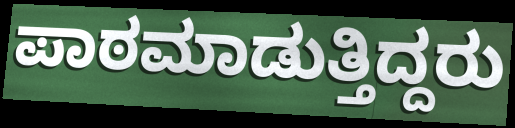
ಪಾಠಮಾಡುತ್ತಿದ್ದರು